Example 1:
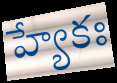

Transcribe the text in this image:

హ్యేకః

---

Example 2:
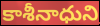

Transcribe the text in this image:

కాశీనాధుని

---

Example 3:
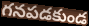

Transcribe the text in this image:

గనపడకుండ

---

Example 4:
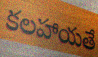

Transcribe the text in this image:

కలహాయతే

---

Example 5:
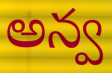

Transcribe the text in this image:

అన్వ